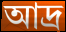
আদ্র